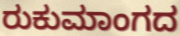
ರುಕುಮಾಂಗದ